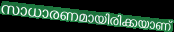
സാധാരണമായിരിക്കയാണ്